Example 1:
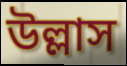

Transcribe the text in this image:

উল্লাস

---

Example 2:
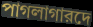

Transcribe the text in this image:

পাগলাগারদে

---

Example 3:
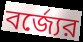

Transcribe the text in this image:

বর্জ্যের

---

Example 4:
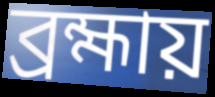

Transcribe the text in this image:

ব্রহ্মায়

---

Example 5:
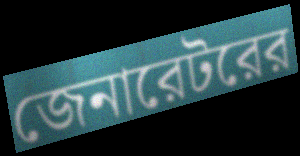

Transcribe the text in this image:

জেনারেটরের